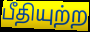
பீதியுற்ற